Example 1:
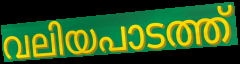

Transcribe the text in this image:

വലിയപാടത്ത്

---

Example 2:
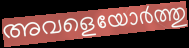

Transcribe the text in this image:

അവളെയോർത്തു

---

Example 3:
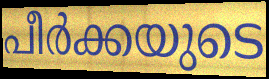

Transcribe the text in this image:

പീർക്കയുടെ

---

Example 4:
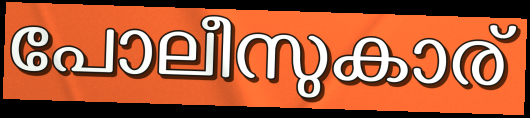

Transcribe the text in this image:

പോലീസുകാര്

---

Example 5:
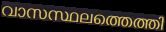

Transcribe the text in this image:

വാസസ്ഥലത്തെത്തി